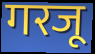
गरजू